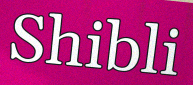
Shibli